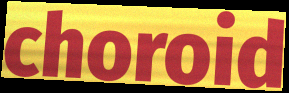
choroid